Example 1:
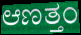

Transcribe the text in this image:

ಆಣತ್ತಂ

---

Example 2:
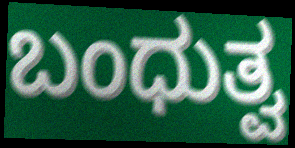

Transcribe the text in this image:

ಬಂಧುತ್ವ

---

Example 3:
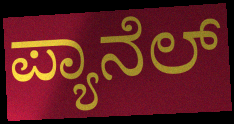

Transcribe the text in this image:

ಪ್ಯಾನೆಲ್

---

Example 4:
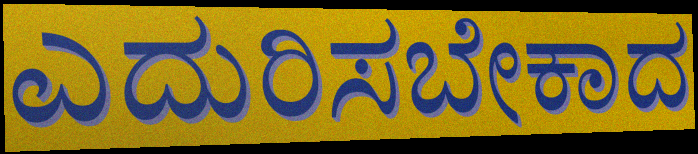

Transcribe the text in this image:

ಎದುರಿಸಬೇಕಾದ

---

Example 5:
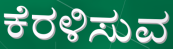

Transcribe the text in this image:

ಕೆರಳಿಸುವ